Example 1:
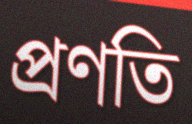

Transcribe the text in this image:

প্ৰণতি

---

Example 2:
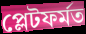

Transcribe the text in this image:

প্লেটফৰ্মত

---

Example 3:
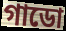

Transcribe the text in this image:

গাডো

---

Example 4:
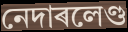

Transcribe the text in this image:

নেদাৰলেণ্ড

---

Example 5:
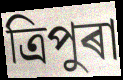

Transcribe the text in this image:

ত্ৰিপুৰা